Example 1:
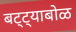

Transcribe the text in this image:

बट्ट्याबोळ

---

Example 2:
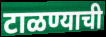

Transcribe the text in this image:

टाळण्याची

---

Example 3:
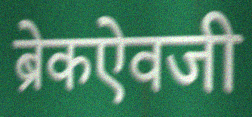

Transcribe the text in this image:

ब्रेकऐवजी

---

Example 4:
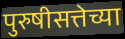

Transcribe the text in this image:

पुरुषीसत्तेच्या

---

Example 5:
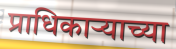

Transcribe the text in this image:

प्राधिकाऱ्याच्या